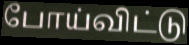
போய்விட்டு